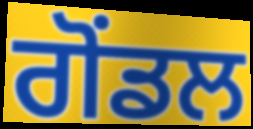
ਗੋਂਡਲ